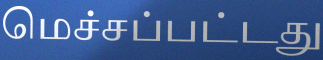
மெச்சப்பட்டது